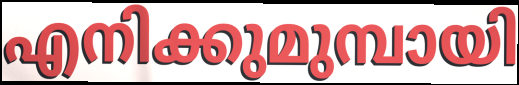
എനിക്കുമുമ്പായി